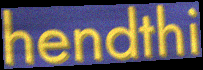
hendthi